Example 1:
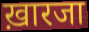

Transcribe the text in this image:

ख़ारजा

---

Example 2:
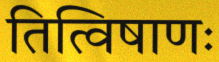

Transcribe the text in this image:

तित्विषाणः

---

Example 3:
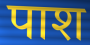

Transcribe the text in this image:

पाश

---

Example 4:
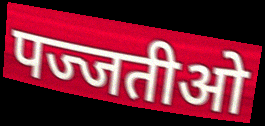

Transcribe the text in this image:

पज्जतीओ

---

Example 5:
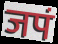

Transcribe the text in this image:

जपं